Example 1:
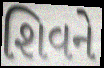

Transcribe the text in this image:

શિવને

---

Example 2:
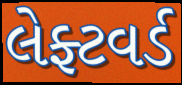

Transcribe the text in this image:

લેફ્ટવર્ડ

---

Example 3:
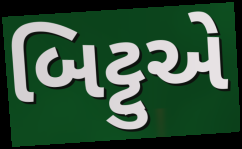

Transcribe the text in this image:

બિટ્ટુએ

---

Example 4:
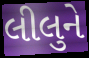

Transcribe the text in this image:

લીલુને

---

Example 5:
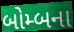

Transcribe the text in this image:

બોમ્બના